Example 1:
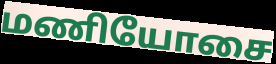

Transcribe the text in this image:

மணியோசை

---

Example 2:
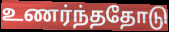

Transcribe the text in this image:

உணர்ந்ததோடு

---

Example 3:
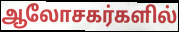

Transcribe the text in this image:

ஆலோசகர்களில்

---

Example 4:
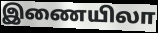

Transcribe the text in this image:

இணையிலா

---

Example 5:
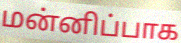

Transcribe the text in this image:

மன்னிப்பாக